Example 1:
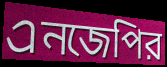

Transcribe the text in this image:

এনজেপির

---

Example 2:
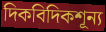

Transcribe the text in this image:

দিকবিদিকশূন্য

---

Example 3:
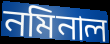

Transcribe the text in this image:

নমিনাল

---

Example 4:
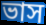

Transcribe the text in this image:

ভাস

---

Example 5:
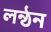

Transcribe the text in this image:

লন্ঠন